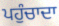
ਪਹੁੰਚਾਦਾ